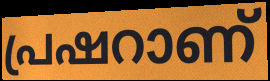
പ്രഷറാണ്